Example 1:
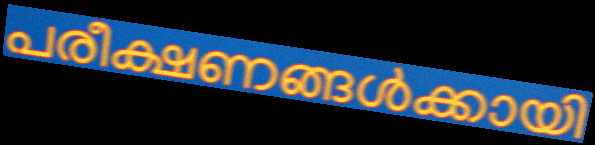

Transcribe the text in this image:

പരീക്ഷണങ്ങൾക്കായി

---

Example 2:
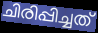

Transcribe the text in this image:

ചിരിപ്പിച്ചത്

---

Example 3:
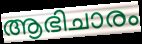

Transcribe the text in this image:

ആഭിചാരം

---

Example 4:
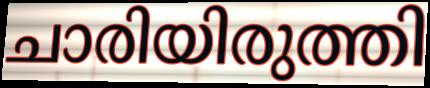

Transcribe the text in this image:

ചാരിയിരുത്തി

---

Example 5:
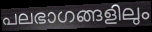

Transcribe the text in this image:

പലഭാഗങ്ങളിലും